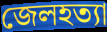
জেলহত্যা